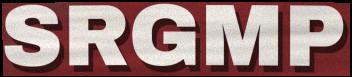
SRGMP